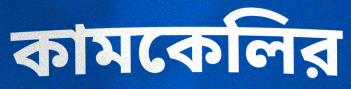
কামকেলির